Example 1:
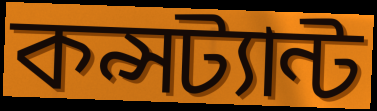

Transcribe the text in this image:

কন্সট্যান্ট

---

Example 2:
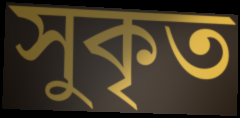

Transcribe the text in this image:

সুকৃত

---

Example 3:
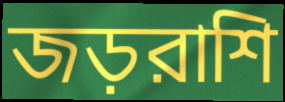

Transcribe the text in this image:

জড়রাশি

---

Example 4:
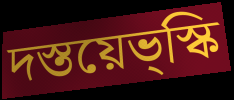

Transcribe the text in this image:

দস্তয়েভ্স্কি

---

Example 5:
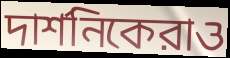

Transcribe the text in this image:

দার্শনিকেরাও